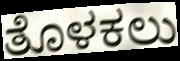
ತೊಳಕಲು